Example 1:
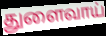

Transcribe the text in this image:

துளைவாய்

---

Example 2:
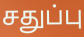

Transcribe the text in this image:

சதுப்பு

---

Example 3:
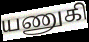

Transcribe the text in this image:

யணுகி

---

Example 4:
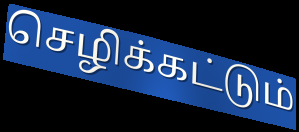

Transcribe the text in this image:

செழிக்கட்டும்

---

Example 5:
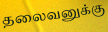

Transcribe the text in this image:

தலைவனுக்கு